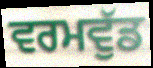
ਵਰਮਵੁੱਡ